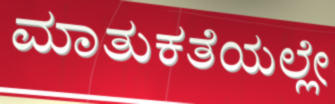
ಮಾತುಕತೆಯಲ್ಲೇ